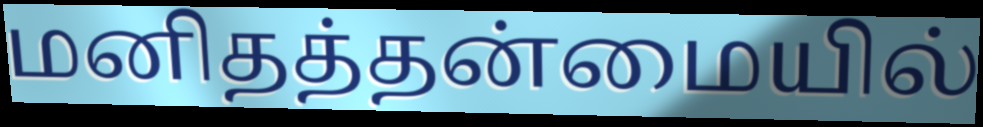
மனிதத்தன்மையில்